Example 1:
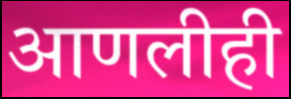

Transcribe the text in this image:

आणलीही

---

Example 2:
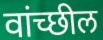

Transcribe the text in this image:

वांच्छील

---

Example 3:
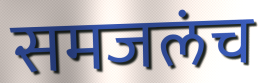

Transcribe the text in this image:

समजलंच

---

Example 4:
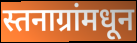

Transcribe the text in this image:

स्तनाग्रांमधून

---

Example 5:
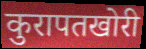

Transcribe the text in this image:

कुरापतखोरी